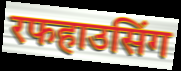
रफहाउसिंग